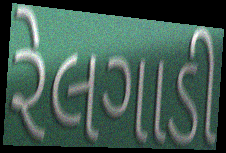
રેલગાડી